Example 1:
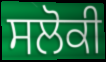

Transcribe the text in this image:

ਸਲੋਕੀ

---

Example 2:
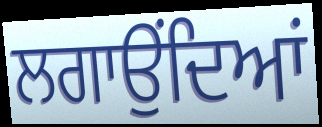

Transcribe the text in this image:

ਲਗਾਉਂਦਿਆਂ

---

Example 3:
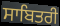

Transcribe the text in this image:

ਸਾਬਿਤਰੀ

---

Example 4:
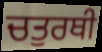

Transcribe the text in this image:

ਚਤੁਰਥੀ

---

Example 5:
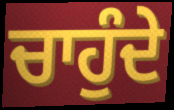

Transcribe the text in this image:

ਚਾਹੁੰਦੇ